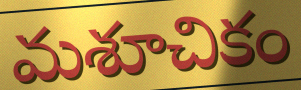
మశూచికం